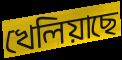
খেলিয়াছে